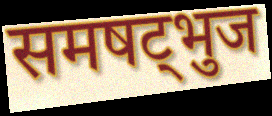
समषट्भुज